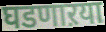
घडणाऱया